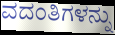
ವದಂತಿಗಳನ್ನು